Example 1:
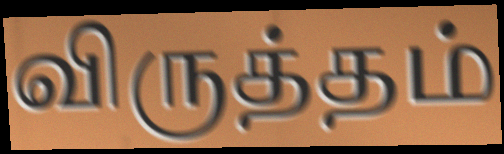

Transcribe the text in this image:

விருத்தம்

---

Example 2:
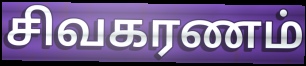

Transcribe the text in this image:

சிவகரணம்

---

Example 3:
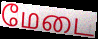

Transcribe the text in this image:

மேடை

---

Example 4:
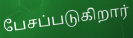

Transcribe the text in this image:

பேசப்படுகிறார்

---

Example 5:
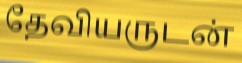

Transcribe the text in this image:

தேவியருடன்